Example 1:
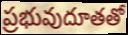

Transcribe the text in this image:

ప్రభువుదూతతో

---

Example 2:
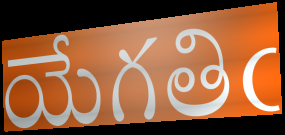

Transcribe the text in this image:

యేగతిఁ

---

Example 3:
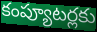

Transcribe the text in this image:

కంప్యూటర్లకు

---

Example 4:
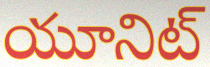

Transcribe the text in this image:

యూనిట్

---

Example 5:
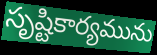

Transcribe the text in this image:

సృష్టికార్యమును